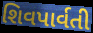
શિવપાર્વતી